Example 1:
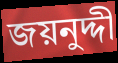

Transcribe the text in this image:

জয়নুদ্দী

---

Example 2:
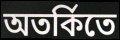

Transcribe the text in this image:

অতর্কিতে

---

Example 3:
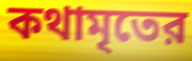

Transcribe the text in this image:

কথামৃতের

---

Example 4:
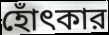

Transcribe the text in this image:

হোঁৎকার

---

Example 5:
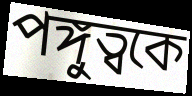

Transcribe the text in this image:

পঙ্গুত্বকে